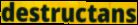
destructans